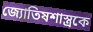
জ্যোতিষশাস্ত্রকে